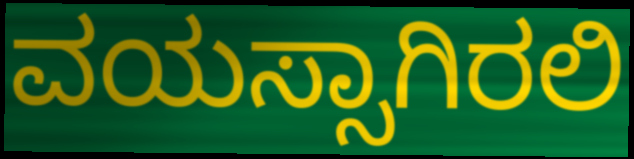
ವಯಸ್ಸಾಗಿರಲಿ